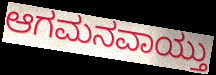
ಆಗಮನವಾಯ್ತು